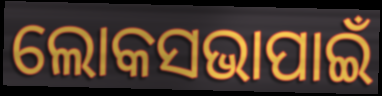
ଲୋକସଭାପାଇଁ